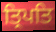
ਤ੍ਰਿਪਤਿ